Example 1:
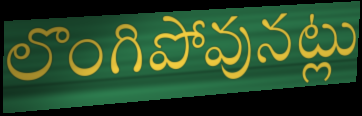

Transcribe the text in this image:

లొంగిపోవునట్లు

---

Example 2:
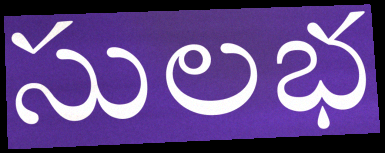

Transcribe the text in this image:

సులభ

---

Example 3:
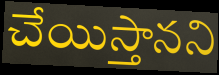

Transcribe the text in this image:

చేయిస్తానని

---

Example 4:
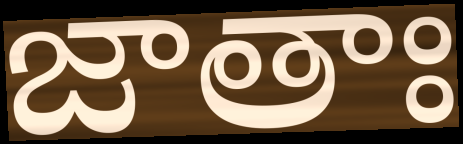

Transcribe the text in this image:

జాతాః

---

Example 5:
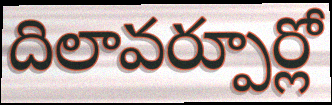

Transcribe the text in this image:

దిలావర్పూర్లో